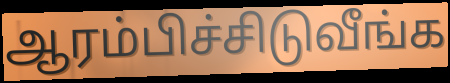
ஆரம்பிச்சிடுவீங்க